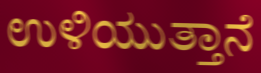
ಉಳಿಯುತ್ತಾನೆ